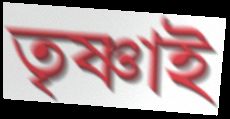
তৃষ্ণাই